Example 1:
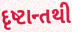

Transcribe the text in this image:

દૃષ્ટાન્તથી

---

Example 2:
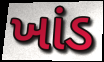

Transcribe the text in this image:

ખાંડ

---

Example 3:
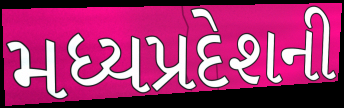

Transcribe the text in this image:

મધ્યપ્રદેશની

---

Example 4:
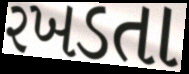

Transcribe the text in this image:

રખડતા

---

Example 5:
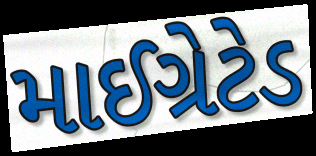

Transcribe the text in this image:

માઈગ્રેટેડ